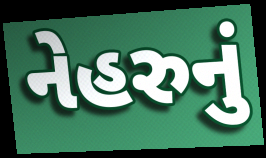
નેહરુનું